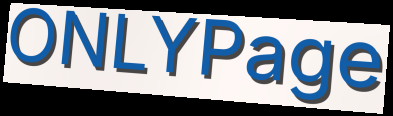
ONLYPage